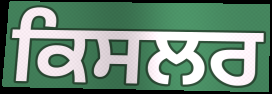
ਕਿਸਲਰ